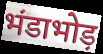
भंडाभोड़